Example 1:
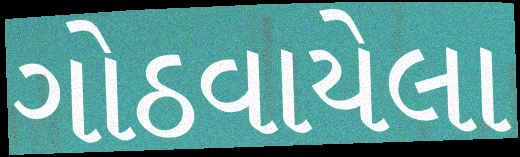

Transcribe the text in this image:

ગોઠવાયેલા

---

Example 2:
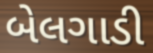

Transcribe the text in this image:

બેલગાડી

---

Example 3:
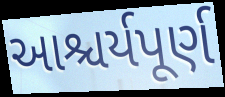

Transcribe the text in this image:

આશ્ચર્યપૂર્ણ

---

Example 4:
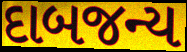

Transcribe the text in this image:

દાબજન્ય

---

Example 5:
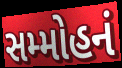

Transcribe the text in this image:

સમ્મોહનં